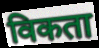
विकता